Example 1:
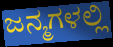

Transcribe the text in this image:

ಜನ್ಮಗಳಲ್ಲಿ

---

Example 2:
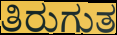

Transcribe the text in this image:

ತಿರುಗುತ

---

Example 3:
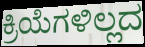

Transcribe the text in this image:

ಕ್ರಿಯೆಗಳಿಲ್ಲದ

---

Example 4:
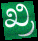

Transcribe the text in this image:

ಖ್ರಿ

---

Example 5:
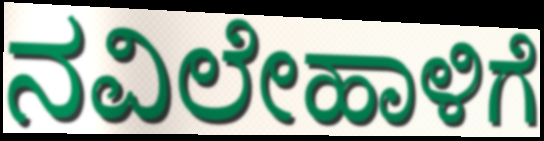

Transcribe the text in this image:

ನವಿಲೇಹಾಳಿಗೆ